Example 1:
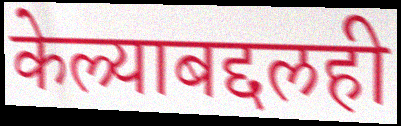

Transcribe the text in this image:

केल्याबद्दलही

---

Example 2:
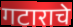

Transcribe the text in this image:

गटाराचे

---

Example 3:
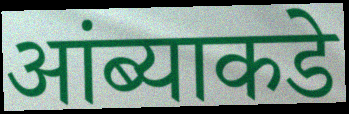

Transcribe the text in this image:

आंब्याकडे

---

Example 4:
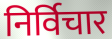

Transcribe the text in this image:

निर्विचार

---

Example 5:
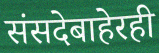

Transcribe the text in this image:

संसदेबाहेरही